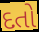
દતો